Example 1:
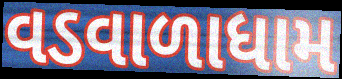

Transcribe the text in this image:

વડવાળાધામ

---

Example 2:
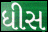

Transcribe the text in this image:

ધીસ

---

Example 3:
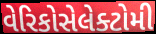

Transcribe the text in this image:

વેરિકોસેલેક્ટોમી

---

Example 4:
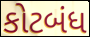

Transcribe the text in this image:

કોટબંધ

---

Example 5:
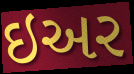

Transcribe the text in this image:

ઇઅર